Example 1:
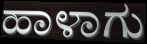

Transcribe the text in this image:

ಹಾಳಾಗು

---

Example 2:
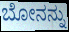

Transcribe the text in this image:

ಬೋನನ್ನು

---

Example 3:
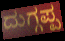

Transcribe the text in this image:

ದುಗ್ಗಪ್ಪ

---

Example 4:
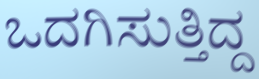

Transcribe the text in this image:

ಒದಗಿಸುತ್ತಿದ್ದ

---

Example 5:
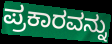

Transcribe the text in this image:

ಪ್ರಕಾರವನ್ನು